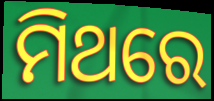
ମିଥରେ